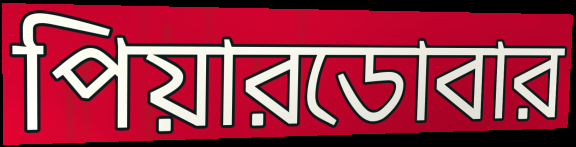
পিয়ারডোবার